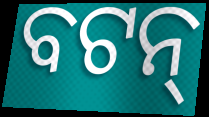
ବଟନ୍